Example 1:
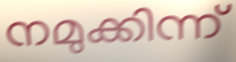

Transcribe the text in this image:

നമുക്കിന്ന്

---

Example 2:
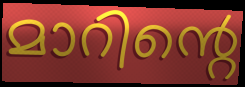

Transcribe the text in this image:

മാറിന്റെ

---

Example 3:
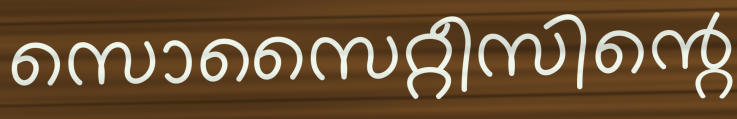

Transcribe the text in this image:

സൊസൈറ്റീസിന്റെ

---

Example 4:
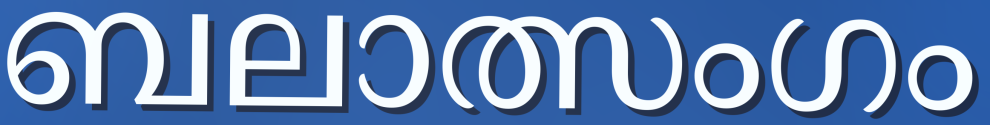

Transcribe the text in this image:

ബലാത്സംഗം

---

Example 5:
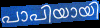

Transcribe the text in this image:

പാപിയായി